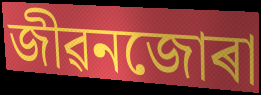
জীৱনজোৰা